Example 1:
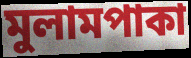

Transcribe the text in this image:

মুলামপাকা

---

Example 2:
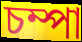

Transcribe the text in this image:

চম্পা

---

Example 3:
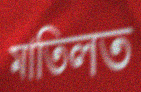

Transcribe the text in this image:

মাতিলত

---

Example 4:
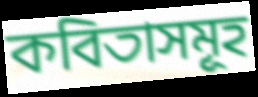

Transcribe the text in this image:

কবিতাসমূহ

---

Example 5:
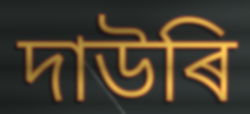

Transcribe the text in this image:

দাউৰি